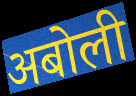
अबोली